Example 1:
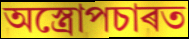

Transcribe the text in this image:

অস্ত্ৰোপচাৰত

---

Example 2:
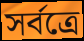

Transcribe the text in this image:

সৰ্বত্ৰে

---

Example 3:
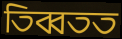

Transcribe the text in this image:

তিব্বতত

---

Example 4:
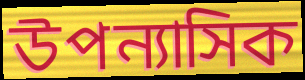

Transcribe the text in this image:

উপন্যাসিক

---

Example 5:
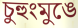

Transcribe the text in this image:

চুহুংমুঙে